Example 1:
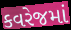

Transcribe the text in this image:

કવરેજમાં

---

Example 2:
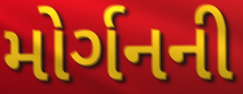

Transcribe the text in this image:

મોર્ગનની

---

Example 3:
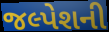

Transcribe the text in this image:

જલ્પેશની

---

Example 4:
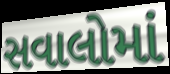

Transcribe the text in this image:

સવાલોમાં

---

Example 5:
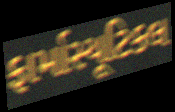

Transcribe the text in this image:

ફાર્માસ્યૂટિકલ